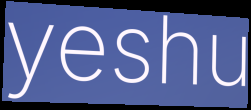
yeshu